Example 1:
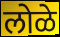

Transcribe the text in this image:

लोळे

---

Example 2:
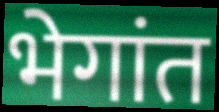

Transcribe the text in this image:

भेगांत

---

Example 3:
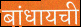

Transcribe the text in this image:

बांधायची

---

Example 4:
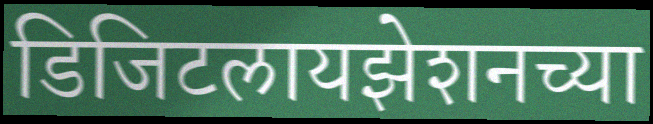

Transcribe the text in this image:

डिजिटलायझेशनच्या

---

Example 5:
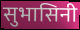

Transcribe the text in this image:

सुभासिनी